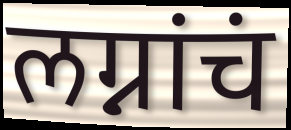
लग्नांचं